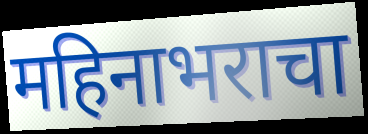
महिनाभराचा